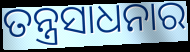
ତନ୍ତ୍ରସାଧନାର